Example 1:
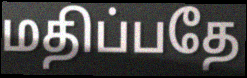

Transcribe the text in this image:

மதிப்பதே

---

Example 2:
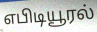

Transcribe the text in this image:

எபிடியூரல்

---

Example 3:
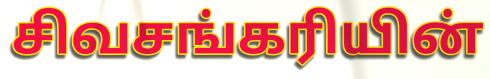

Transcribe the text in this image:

சிவசங்கரியின்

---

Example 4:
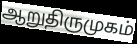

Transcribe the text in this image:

ஆறுதிருமுகம்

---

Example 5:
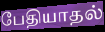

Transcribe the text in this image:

பேதியாதல்